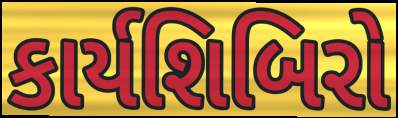
કાર્યશિબિરો